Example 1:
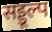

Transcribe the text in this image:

सड्डूल्प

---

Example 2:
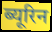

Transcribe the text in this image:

ब्यूरिन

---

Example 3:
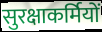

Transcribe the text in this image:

सुरक्षाकर्मियों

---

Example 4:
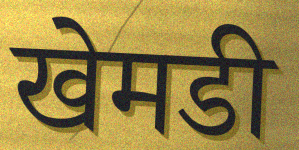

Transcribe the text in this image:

खेमडी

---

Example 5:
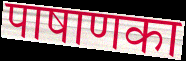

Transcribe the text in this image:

पाषाणका